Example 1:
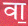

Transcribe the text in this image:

वा॒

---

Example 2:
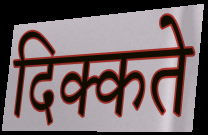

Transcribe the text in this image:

दिक्कते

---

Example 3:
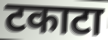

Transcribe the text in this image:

टकाटा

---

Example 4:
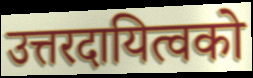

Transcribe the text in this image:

उत्तरदायित्वको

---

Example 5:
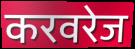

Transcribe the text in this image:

करवरेज